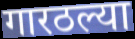
गारठल्या